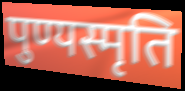
पुण्यस्मृति